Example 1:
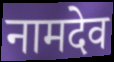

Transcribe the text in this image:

नामदेव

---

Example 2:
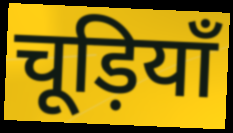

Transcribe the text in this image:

चूड़ियाँ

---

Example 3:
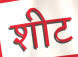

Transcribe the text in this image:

शीट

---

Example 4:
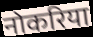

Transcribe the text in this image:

नोकरिया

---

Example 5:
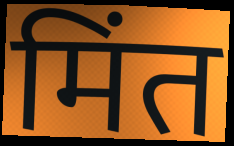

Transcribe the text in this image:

मिंत